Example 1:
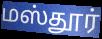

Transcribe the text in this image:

மஸ்தூர்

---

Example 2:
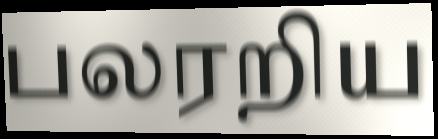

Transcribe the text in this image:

பலரறிய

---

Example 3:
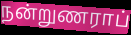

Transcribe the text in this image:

நன்றுணராப்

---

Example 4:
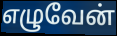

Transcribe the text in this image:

எழுவேன்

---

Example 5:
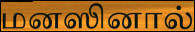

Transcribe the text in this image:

மனஸினால்